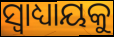
ସ୍ୱାଧ୍ୟାୟକୁ